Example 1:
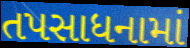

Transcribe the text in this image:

તપસાધનામાં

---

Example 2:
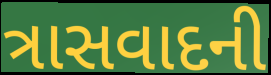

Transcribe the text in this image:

ત્રાસવાદની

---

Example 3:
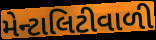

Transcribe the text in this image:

મેન્ટાલિટીવાળી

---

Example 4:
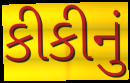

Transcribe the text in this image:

કીકીનું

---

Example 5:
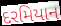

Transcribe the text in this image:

દરમિયાન